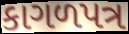
કાગળપત્ર